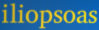
iliopsoas